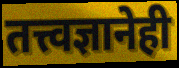
तत्त्वज्ञानेही